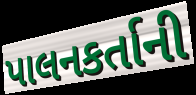
પાલનકર્તાની